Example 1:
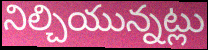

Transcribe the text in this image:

నిల్చియున్నట్లు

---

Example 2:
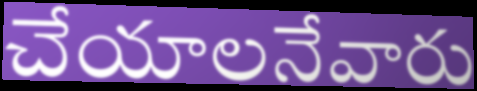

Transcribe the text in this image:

చేయాలనేవారు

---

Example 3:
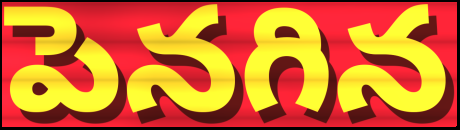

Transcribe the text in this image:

పెనగిన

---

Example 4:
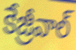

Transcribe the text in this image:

కేజ్రీవాల్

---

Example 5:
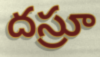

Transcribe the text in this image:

దస్రూ